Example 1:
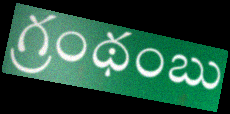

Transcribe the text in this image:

గ్రంథంబు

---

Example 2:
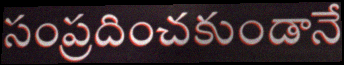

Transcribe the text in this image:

సంప్రదించకుండానే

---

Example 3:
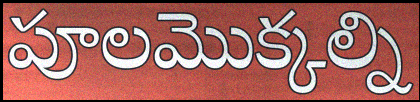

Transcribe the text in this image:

పూలమొక్కల్ని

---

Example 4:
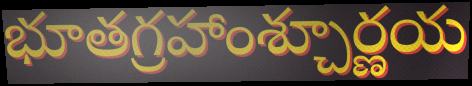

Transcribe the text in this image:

భూతగ్రహాంశ్చూర్ణయ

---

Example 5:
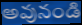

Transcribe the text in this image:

అవునండి